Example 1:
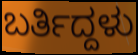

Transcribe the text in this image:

ಬರ್ತಿದ್ದಳು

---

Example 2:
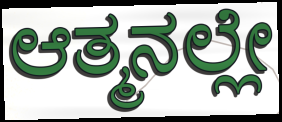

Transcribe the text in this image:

ಆತ್ಮನಲ್ಲೇ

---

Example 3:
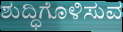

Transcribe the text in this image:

ಶುದ್ಧಿಗೊಳಿಸುವ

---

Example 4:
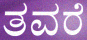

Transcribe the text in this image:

ತವರೆ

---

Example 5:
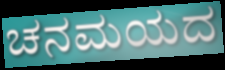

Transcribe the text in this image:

ಚನಮಯದ